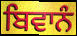
ਬਿਵਾਨੰ